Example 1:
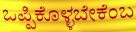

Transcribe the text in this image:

ಒಪ್ಪಿಕೊಳ್ಳಬೇಕೆಂಬ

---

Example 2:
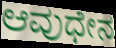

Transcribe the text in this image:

ಆವುಧೇನ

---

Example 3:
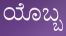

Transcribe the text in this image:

ಯೊಬ್ಬ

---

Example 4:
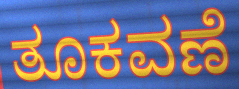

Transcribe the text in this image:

ತೂಕವಣೆ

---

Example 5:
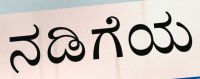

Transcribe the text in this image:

ನಡಿಗೆಯ